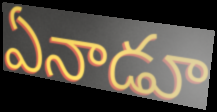
ఏనాడూ